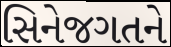
સિનેજગતને